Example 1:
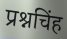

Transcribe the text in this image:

प्रश्नचिंह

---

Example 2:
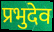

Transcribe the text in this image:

प्रभुदेव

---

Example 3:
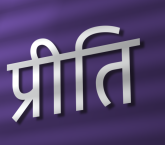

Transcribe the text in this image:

प्रीति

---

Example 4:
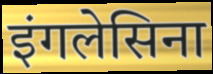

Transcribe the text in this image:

इंगलेसिना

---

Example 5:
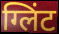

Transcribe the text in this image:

ग्लिंट